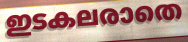
ഇടകലരാതെ